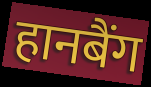
हानबैंग